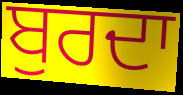
ਬੁਰਦਾ